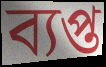
ব্যপ্ত